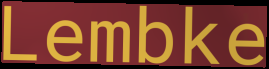
Lembke